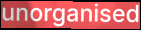
unorganised